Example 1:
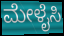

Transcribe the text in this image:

ಮೇಳೈಸಿ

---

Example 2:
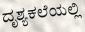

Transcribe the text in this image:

ದೃಶ್ಯಕಲೆಯಲ್ಲಿ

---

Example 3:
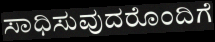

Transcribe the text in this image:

ಸಾಧಿಸುವುದರೊಂದಿಗೆ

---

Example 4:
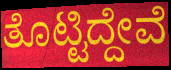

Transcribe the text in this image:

ತೊಟ್ಟಿದ್ದೇವೆ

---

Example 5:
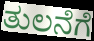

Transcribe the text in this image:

ತುಲನೆಗೆ